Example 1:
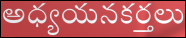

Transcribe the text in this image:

అధ్యయనకర్తలు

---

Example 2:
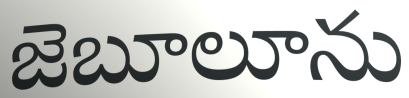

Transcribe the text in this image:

జెబూలూను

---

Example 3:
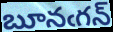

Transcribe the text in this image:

బూనఁగన్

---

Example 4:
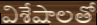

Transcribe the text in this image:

విశేషాలతో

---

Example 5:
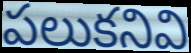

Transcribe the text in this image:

పలుకనివి